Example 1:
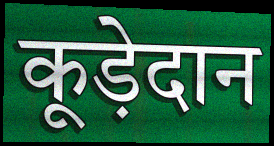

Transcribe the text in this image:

कूड़ेदान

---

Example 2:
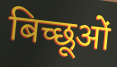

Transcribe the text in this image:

बिच्छूओं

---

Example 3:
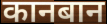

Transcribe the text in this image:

कानबान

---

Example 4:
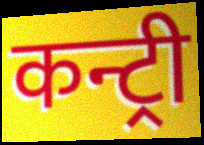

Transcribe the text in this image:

कन्ट्री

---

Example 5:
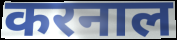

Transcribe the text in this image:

करनाल